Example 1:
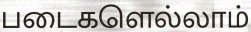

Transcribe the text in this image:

படைகளெல்லாம்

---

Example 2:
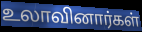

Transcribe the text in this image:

உலாவினார்கள்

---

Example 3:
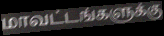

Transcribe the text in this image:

மாவட்டங்களுக்கு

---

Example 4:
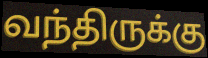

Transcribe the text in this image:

வந்திருக்கு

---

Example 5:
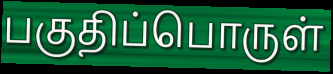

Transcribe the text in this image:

பகுதிப்பொருள்